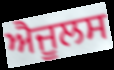
ਐਜੂਲਸ